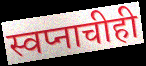
स्वप्नाचीही